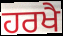
ਹਰਖੈ